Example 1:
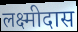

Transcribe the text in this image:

लक्ष्मीदास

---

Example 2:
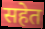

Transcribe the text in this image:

सहेत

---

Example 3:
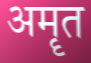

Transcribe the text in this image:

अमॄत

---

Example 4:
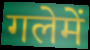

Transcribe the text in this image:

गलेमें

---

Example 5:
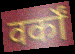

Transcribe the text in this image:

वर्कों